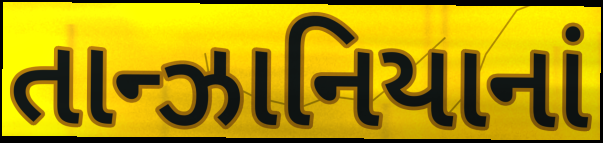
તાન્ઝાનિયાનાં